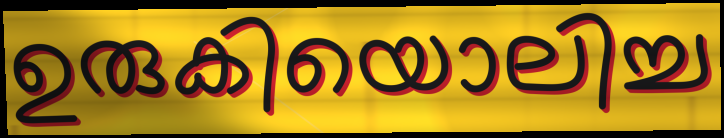
ഉരുകിയൊലിച്ച